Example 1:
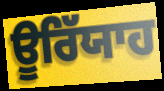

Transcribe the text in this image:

ਊਰਿੱਯਾਹ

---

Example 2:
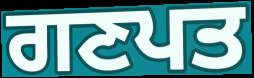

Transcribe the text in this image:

ਗਣਪਤ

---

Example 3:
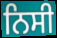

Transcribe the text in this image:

ਨਿਸੀ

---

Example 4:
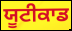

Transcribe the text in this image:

ਯੂਟੀਕਾਡ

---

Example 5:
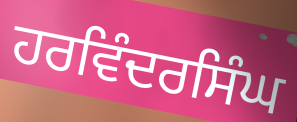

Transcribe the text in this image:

ਹਰਵਿੰਦਰਸਿੰਘ